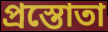
প্রস্তোতা